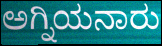
ಅಗ್ನಿಯನಾರು